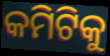
କମିଟିକୁ